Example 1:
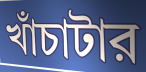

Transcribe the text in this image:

খাঁচাটার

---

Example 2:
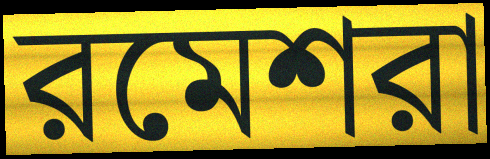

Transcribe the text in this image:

রমেশরা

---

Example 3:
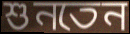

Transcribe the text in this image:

শুনতেন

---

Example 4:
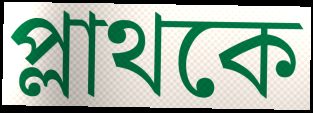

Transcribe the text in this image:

প্লাথকে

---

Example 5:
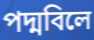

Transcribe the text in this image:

পদ্মবিলে